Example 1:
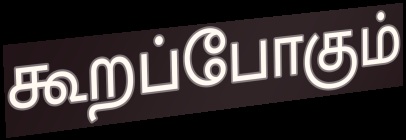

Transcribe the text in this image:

கூறப்போகும்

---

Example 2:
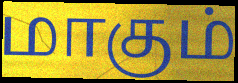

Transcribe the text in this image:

மாகும்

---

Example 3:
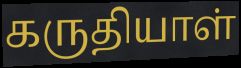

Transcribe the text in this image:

கருதியாள்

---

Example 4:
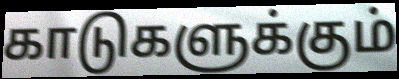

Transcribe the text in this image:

காடுகளுக்கும்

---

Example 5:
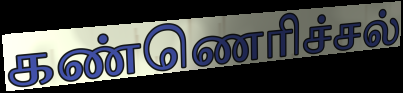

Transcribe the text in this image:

கண்ணெரிச்சல்